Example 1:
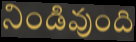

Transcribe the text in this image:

నిండివుంది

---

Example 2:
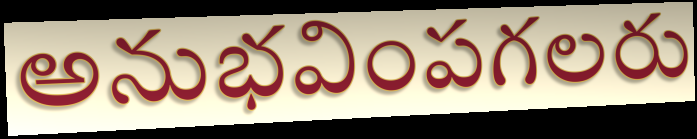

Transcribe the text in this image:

అనుభవింపగలరు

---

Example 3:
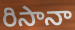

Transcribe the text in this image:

రిసానా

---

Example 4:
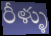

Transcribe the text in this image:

రీళ్ళు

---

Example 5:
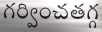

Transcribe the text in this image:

గర్వించతగ్గ